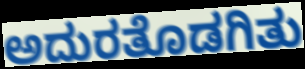
ಅದುರತೊಡಗಿತು